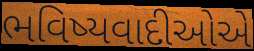
ભવિષ્યવાદીઓએ